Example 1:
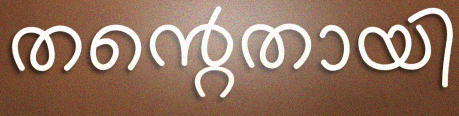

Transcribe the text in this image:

തന്റെതായി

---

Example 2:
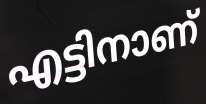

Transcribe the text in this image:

എട്ടിനാണ്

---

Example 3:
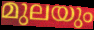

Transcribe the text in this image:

മുലയും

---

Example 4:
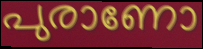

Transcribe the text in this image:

പുരാണോ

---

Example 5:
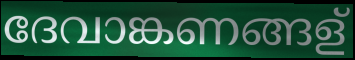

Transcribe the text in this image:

ദേവാങ്കണങ്ങള്